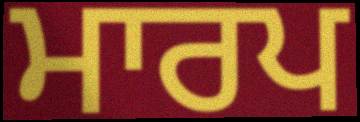
ਮਾਰਪ